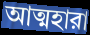
আত্মহারা